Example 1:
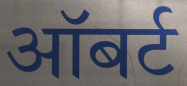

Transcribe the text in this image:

ऑबर्ट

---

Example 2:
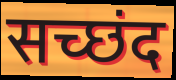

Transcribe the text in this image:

सच्छंद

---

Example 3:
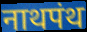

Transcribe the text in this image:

नाथपंथ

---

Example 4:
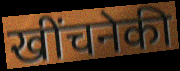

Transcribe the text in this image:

खींचनेकी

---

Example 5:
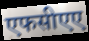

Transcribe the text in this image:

एफसीएए